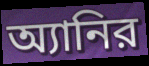
অ্যানির